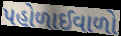
પહોળાઈવાળો